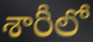
శారీలో